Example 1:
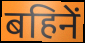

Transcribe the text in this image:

बहिनें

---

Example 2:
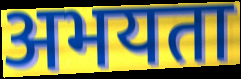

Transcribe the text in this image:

अभयता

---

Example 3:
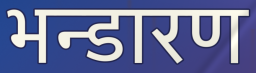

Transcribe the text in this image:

भन्डारण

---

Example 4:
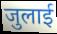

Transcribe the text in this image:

जुलाई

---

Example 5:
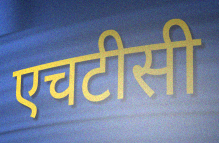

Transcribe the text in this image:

एचटीसी